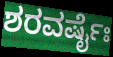
ಶರವರ್ಷೈಃ